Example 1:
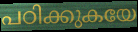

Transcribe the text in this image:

പഠിക്കുകയേ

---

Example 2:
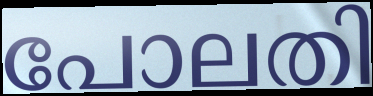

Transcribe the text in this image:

പോലതി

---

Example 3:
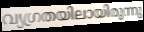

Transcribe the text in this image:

വ്യഗ്രതയിലായിരുന്നു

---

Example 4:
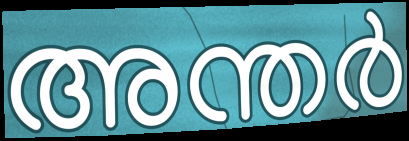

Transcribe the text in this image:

അന്തർ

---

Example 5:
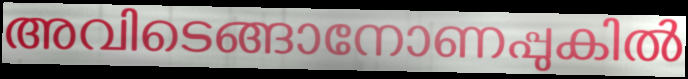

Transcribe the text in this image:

അവിടെങ്ങാനോണപ്പുകിൽ